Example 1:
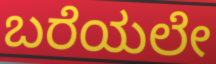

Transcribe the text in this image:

ಬರೆಯಲೇ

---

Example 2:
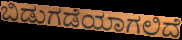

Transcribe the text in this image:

ಬಿಡುಗಡೆಯಾಗಲಿದೆ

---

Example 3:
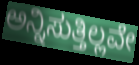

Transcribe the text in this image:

ಅನ್ನಿಸುತ್ತಿಲ್ಲವೇ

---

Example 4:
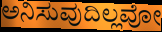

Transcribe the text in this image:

ಅನಿಸುವುದಿಲ್ಲವೋ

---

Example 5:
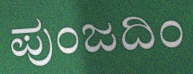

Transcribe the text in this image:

ಪುಂಜದಿಂ